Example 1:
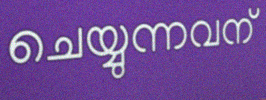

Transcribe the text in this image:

ചെയ്യുന്നവന്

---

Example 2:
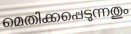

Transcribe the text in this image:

മെതിക്കപ്പെടുന്നതും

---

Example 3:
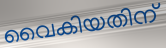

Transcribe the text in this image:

വൈകിയതിന്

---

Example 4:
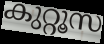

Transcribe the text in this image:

കുറ്റൂസ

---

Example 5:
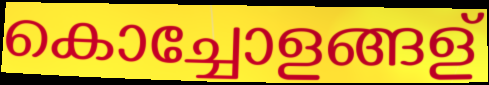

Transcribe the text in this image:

കൊച്ചോളങ്ങള്